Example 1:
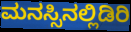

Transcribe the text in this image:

ಮನಸ್ಸಿನಲ್ಲಿಡಿರಿ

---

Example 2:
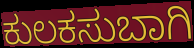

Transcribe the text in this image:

ಕುಲಕಸುಬಾಗಿ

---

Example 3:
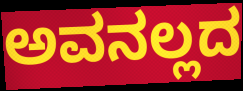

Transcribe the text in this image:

ಅವನಲ್ಲದ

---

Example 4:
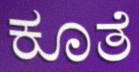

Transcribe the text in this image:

ಕೂತೆ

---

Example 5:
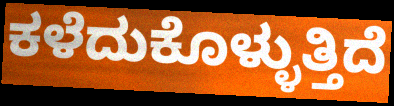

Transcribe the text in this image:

ಕಳೆದುಕೊಳ್ಳುತ್ತಿದೆ